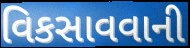
વિકસાવવાની